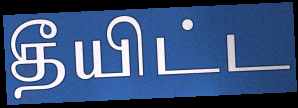
தீயிட்ட